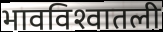
भावविश्वातली